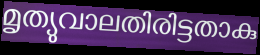
മൃത്യുവാലതിരിട്ടതാകു